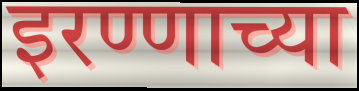
इरण्णाच्या